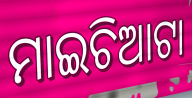
ମାଇଚିଆଟା